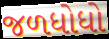
જળધોધો